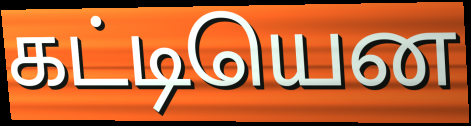
கட்டியென